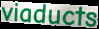
viaducts